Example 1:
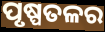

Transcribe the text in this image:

ପୃଷ୍ପତଳର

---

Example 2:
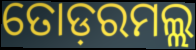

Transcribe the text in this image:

ତୋଡ଼ରମଲ୍ଲ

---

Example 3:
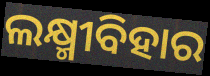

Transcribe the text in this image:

ଲକ୍ଷ୍ମୀବିହାର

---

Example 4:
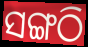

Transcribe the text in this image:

ସଙ୍ଗଠି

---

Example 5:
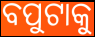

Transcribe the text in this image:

ବପୁଟାକୁ